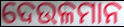
ଦେଉଳମାନ